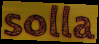
solla